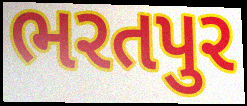
ભરતપુર